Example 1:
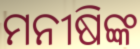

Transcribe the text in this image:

ମନୀଷିଙ୍କ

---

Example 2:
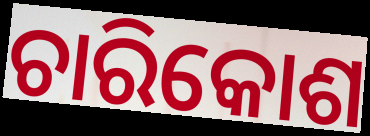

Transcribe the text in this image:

ଚାରିକୋଶ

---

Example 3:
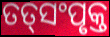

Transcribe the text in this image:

ତତ୍‌ସଂପୃକ୍ତ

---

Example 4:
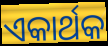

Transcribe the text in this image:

ଏକାର୍ଥକ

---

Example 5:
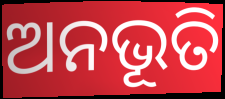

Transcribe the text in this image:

ଅନଭୂତି